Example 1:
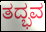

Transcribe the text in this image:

ತದ್ಭವ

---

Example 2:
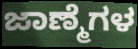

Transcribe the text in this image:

ಜಾಣ್ಮೆಗಳ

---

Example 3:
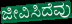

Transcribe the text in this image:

ಜೀವಿಸಿದೆವು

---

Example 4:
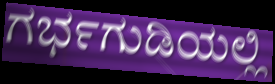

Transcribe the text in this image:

ಗರ್ಭಗುಡಿಯಲ್ಲಿ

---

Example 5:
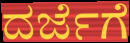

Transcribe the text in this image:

ದರ್ಜೆಗೆ